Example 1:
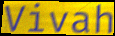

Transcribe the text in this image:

Vivah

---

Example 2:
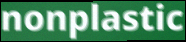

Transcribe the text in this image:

nonplastic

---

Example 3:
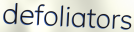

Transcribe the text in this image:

defoliators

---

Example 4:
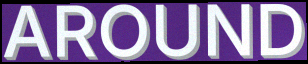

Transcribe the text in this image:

AROUND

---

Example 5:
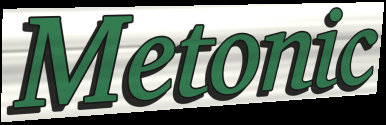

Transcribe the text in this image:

Metonic